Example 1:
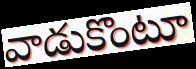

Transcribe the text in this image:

వాడుకొంటూ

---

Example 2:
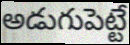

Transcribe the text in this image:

అడుగుపెట్టే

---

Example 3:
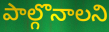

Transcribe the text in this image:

పాల్గొనాలని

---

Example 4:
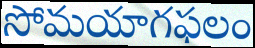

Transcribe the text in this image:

సోమయాగఫలం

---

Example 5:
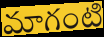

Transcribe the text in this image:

మాగంటి